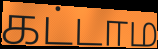
கட்டாம